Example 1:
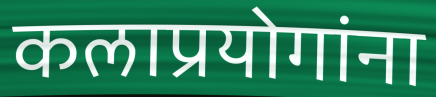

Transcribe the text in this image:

कलाप्रयोगांना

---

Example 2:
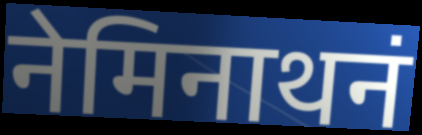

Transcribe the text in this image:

नेमिनाथनं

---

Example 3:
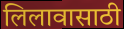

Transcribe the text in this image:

लिलावासाठी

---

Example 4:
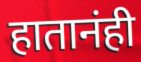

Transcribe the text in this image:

हातानंही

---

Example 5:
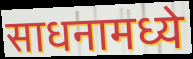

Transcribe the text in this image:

साधनामध्ये